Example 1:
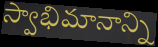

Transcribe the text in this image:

స్వాభిమానాన్ని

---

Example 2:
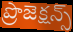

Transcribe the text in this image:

ప్రొజెక్షన్స్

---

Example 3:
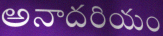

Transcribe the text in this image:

అనాదరియం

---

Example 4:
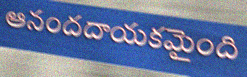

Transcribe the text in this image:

ఆనందదాయకమైంది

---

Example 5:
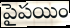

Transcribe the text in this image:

పైపయిం